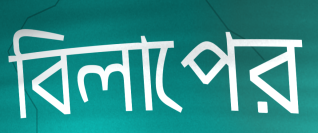
বিলাপের